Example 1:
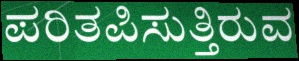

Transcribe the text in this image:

ಪರಿತಪಿಸುತ್ತಿರುವ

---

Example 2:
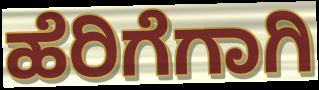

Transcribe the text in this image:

ಹೆರಿಗೆಗಾಗಿ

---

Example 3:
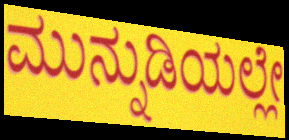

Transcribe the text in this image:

ಮುನ್ನುಡಿಯಲ್ಲೇ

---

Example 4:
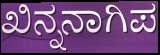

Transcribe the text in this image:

ಖಿನ್ನನಾಗಿಪ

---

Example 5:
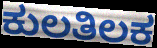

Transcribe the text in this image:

ಕುಲತಿಲಕ